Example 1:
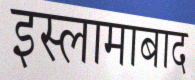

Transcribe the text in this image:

इस्लामाबाद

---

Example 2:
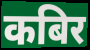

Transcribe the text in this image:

कबिर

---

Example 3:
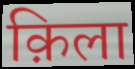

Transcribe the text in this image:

क़िला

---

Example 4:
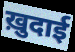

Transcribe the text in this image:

ख़ुदाई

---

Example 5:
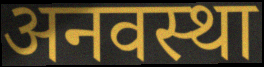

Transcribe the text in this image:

अनवस्था